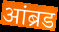
आंब्रड